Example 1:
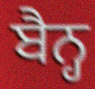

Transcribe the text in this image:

ਬੈਨ੍ਹ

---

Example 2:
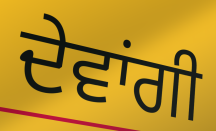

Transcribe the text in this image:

ਦੇਵਾਂਗੀ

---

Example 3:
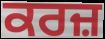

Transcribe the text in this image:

ਕਰਜ਼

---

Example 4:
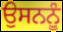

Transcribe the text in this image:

ਉਸਨਨੂੰ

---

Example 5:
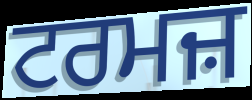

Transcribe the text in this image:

ਟਰਮਜ਼